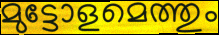
മുട്ടോളമെത്തും